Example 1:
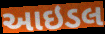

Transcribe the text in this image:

આઇડલ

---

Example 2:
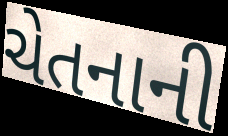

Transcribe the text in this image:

ચેતનાની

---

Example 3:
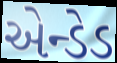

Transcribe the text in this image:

એન્ડેડ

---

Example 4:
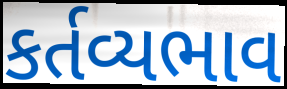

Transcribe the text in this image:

કર્તવ્યભાવ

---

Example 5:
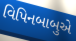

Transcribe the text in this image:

વિપિનબાબુએ